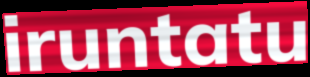
iruntatu